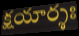
క్షయార్శః